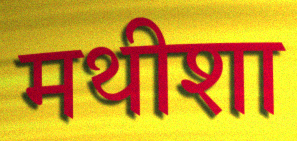
मथीशा